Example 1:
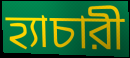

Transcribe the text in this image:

হ্যাচারী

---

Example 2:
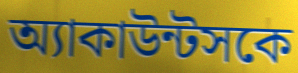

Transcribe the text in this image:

অ্যাকাউন্টসকে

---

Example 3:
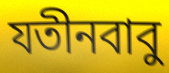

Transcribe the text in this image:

যতীনবাবু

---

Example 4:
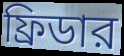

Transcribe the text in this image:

ফ্রিডার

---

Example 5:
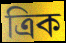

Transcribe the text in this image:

ত্রিক